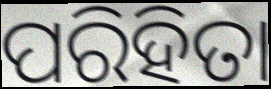
ପରିହିତା